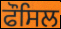
ਫੌਸਿਲ